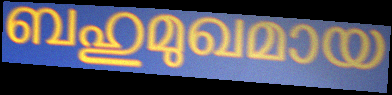
ബഹുമുഖമായ